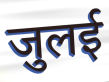
जुलई